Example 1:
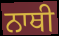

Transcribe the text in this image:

ਨਾਥੀ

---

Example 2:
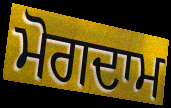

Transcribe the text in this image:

ਮੋਗਦਾਮ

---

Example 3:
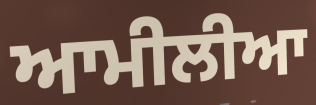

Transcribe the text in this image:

ਆਮੀਲੀਆ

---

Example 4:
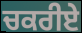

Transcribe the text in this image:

ਚਕਰੀਏ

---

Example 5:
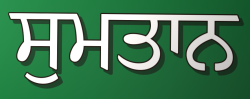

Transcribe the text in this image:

ਸੁਮਤਾਨ